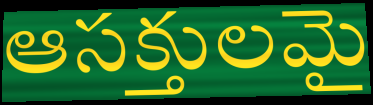
ఆసక్తులమై